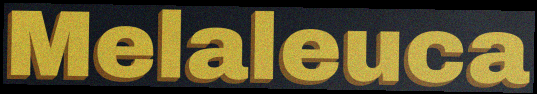
Melaleuca